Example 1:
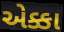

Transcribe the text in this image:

એક્કા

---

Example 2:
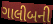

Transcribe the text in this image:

ગાલીબની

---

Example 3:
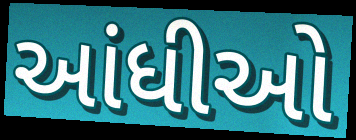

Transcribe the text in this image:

આંધીઓ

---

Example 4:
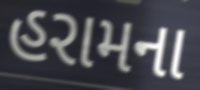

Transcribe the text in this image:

હરામના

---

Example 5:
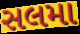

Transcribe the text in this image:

સલમા